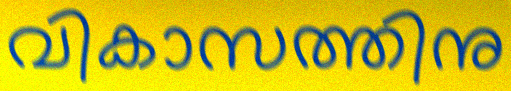
വികാസത്തിനു